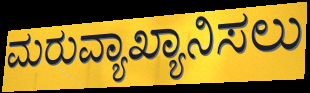
ಮರುವ್ಯಾಖ್ಯಾನಿಸಲು